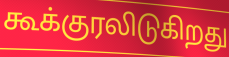
கூக்குரலிடுகிறது